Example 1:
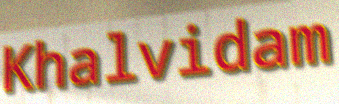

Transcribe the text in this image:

Khalvidam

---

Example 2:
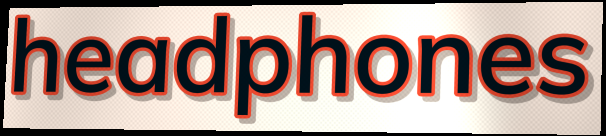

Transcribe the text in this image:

headphones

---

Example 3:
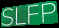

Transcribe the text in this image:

SLFP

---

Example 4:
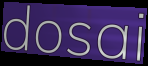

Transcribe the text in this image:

dosai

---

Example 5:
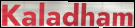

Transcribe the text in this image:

Kaladham